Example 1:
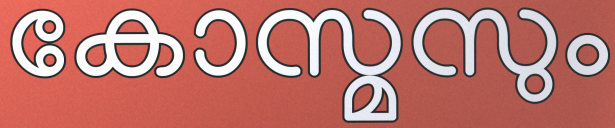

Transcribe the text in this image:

കോസ്മസും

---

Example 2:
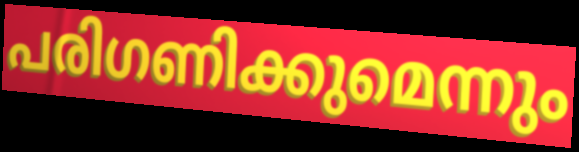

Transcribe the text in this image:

പരിഗണിക്കുമെന്നും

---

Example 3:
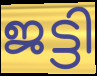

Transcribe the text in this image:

ജട്ടി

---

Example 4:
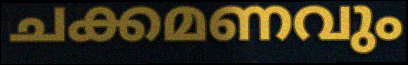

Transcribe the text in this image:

ചക്കമണവും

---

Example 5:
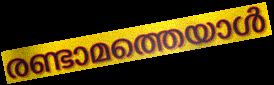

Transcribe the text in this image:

രണ്ടാമത്തെയാൾ